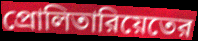
প্রোলিতারিয়েতের